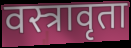
वस्त्रावृता